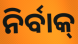
ନିର୍ବାକ୍